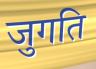
जुगति